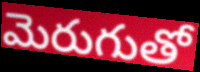
మెరుగుతో